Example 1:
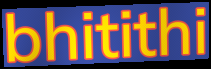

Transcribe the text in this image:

bhitithi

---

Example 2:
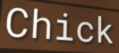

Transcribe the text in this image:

Chick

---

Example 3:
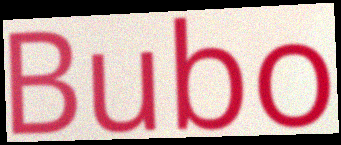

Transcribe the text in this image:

Bubo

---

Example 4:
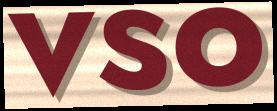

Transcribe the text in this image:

vso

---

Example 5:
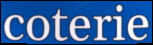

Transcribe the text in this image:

coterie